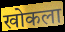
खोकला